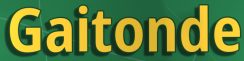
Gaitonde